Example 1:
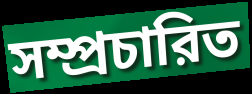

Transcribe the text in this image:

সম্প্রচারিত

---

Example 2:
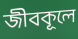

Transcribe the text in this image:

জীবকূলে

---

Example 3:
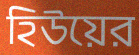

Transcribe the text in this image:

হিউয়ের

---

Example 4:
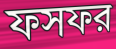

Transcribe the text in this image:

ফসফর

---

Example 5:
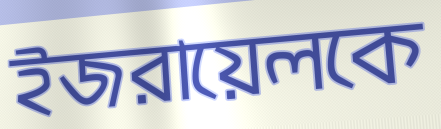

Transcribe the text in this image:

ইজরায়েলকে